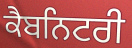
ਕੈਬਨਿਟਰੀ